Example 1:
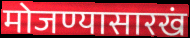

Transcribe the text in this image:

मोजण्यासारखं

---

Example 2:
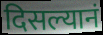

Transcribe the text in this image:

दिसल्यानं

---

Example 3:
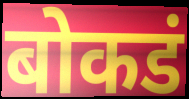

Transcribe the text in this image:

बोकडं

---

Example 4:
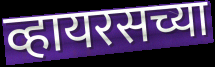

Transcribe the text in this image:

व्हायरसच्या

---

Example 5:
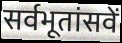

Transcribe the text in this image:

सर्वभूतांसवें